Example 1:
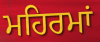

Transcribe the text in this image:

ਮਹਿਰਮਾਂ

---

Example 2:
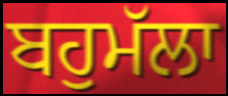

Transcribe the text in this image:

ਬਹੁਮੱਲਾ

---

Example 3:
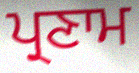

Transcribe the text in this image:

ਪ੍ਰਣਾਮ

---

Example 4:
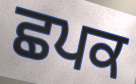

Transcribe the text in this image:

ਛਪਕ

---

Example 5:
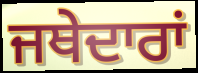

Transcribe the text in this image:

ਜਥੇਦਾਰਾਂ